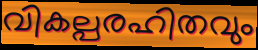
വികല്പരഹിതവും